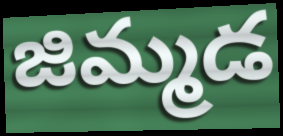
జిమ్మడ